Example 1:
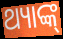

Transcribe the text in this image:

ଥ୍ୟାଙ୍କ୍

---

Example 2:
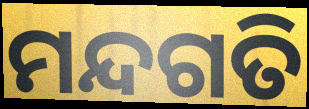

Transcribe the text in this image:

ମନ୍ଦଗତି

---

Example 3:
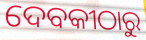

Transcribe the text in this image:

ଦେବକୀଠାରୁ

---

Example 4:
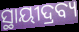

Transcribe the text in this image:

ସ୍ଥାୟୀଦ୍ରବ୍ୟ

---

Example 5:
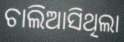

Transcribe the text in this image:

ଚାଲିଆସିଥିଲା